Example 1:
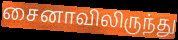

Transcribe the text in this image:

சைனாவிலிருந்து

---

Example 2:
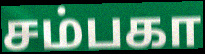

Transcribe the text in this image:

சம்பகா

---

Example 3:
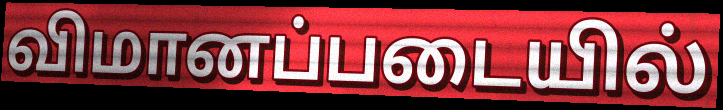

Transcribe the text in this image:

விமானப்படையில்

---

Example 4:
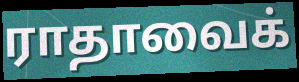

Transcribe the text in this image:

ராதாவைக்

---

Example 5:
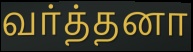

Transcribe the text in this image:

வர்த்தனா